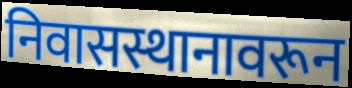
निवासस्थानावरून